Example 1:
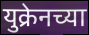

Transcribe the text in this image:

युक्रेनच्या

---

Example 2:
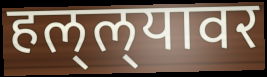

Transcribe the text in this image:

हल्ल्यावर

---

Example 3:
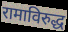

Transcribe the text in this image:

रामाविरुद्ध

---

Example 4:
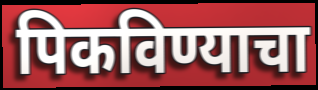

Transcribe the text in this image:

पिकविण्याचा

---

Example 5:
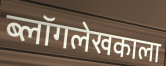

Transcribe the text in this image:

ब्लॉगलेखकाला